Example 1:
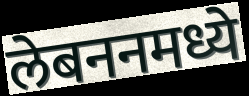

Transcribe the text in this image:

लेबननमध्ये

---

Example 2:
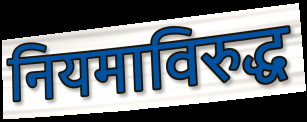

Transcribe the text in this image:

नियमाविरुद्ध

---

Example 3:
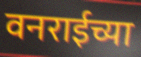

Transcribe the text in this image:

वनराईच्या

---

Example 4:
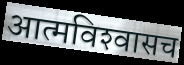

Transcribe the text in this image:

आत्मविश्वासच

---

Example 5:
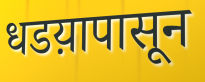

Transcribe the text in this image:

धडय़ापासून